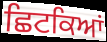
ਛਿਟਕਿਆਂ